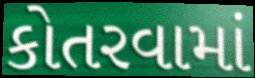
કોતરવામાં